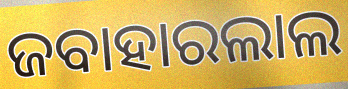
ଜବାହାରଲାଲ